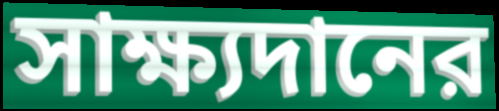
সাক্ষ্যদানের